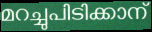
മറച്ചുപിടിക്കാന്